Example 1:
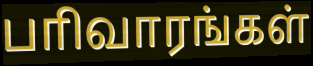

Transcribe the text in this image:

பரிவாரங்கள்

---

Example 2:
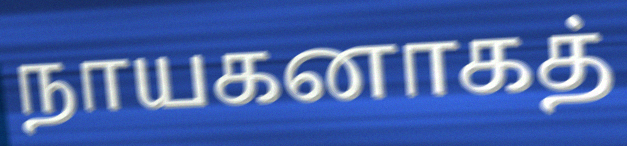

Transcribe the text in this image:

நாயகனாகத்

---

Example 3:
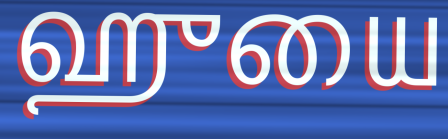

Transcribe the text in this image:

ஹுயை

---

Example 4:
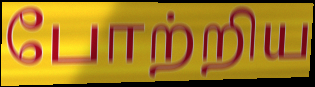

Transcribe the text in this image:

போற்றிய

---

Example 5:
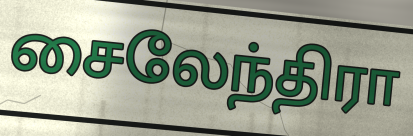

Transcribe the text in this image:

சைலேந்திரா